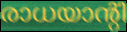
രാധയാന്റി